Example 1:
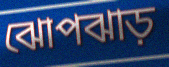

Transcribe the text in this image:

ঝোপঝাড়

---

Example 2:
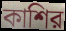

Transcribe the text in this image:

কাশির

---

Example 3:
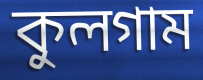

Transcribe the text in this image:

কুলগাম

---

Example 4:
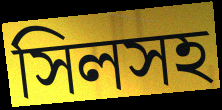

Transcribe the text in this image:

সিলসহ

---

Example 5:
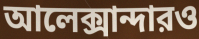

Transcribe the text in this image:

আলেক্সান্দারও